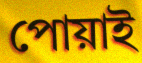
পোয়াই